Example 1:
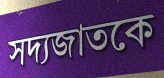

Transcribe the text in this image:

সদ্যজাতকে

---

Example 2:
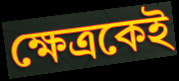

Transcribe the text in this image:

ক্ষেত্রকেই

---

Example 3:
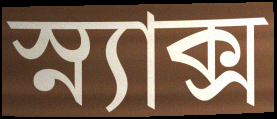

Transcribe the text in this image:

স্ন্যাক্স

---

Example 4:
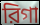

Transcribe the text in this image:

রিগা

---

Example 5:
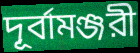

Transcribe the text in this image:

দূর্বামঞ্জরী